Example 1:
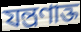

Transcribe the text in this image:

যন্ত্রণাক্ত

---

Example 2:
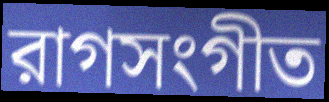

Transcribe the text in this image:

রাগসংগীত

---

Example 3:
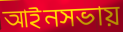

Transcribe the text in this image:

আইনসভায়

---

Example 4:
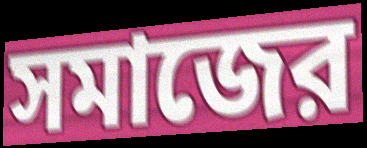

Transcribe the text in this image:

সমাজের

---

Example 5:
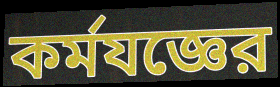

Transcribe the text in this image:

কর্মযজ্ঞের